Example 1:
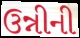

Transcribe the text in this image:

ઉન્નીની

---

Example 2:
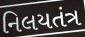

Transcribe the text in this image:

નિલયતંત્ર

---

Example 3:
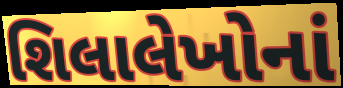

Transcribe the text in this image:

શિલાલેખોનાં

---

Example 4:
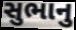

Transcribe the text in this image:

સુભાનુ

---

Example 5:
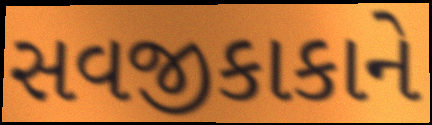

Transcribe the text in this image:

સવજીકાકાને